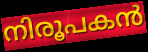
നിരൂപകൻ